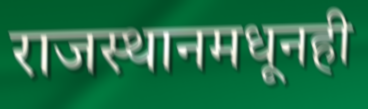
राजस्थानमधूनही